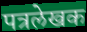
पत्रलेखक